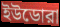
ইউডোরা